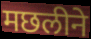
मछलीने